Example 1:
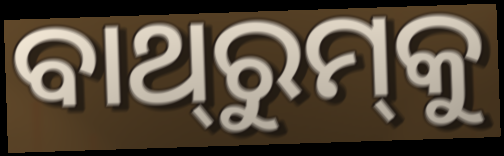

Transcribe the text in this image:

ବାଥ୍‌ରୁମ୍‌କୁ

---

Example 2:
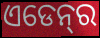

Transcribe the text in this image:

ଏଡେନ୍‍ର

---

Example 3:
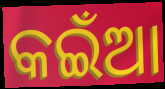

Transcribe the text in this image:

କଇଁଆ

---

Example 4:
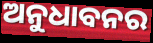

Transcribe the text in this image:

ଅନୁଧାବନର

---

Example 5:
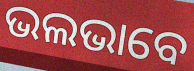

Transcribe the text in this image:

ଭଲଭାବେ